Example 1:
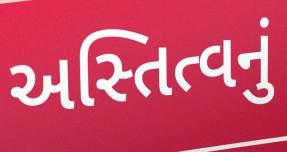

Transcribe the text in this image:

અસ્તિત્વનું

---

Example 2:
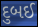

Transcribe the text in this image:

દુબઈ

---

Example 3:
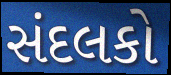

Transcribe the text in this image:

સંદલકો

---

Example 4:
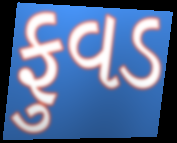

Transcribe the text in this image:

ફુવડ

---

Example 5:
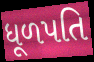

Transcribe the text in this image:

ધૂળપતિ